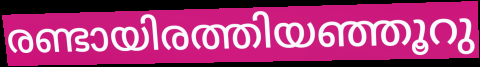
രണ്ടായിരത്തിയഞ്ഞൂറു